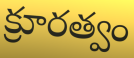
క్రూరత్వం